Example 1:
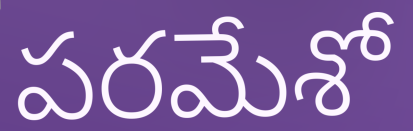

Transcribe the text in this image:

పరమేశో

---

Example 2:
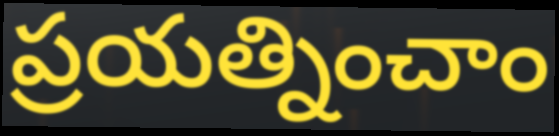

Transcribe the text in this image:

ప్రయత్నించాం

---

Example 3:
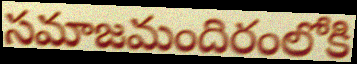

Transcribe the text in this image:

సమాజమందిరంలోకి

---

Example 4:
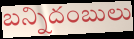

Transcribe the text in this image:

బన్నిదంబులు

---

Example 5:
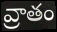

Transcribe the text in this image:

వ్రాతం